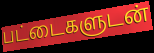
பட்டைகளுடன்